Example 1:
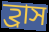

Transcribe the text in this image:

হ্ৰাস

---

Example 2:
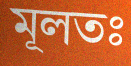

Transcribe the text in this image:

মূলতঃ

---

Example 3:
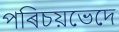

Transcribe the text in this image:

পৰিচয়ভেদে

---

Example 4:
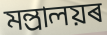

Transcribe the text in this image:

মন্ত্ৰালয়ৰ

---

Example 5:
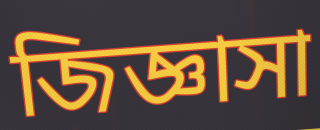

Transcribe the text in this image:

জিজ্ঞাসা